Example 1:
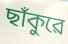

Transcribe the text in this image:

ছাঁকুৱে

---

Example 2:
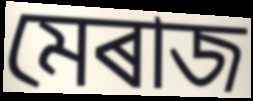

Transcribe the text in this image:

মেৰাজ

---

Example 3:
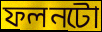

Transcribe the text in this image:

ফলনটো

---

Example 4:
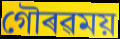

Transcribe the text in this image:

গৌৰৱময়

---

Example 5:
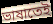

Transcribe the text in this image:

ভাষাতেই